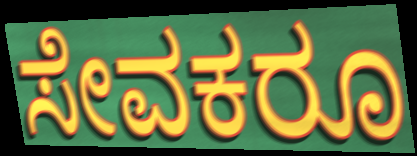
ಸೇವಕರೂ